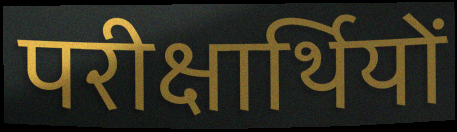
परीक्षार्थियों